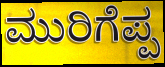
ಮುರಿಗೆಪ್ಪ